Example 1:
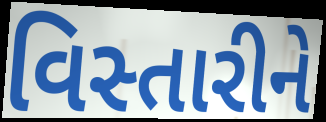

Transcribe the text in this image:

વિસ્તારીને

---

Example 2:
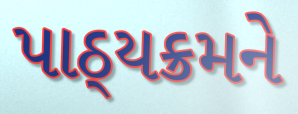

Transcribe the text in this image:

પાઠ્યક્રમને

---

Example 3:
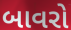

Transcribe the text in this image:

બાવરો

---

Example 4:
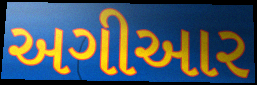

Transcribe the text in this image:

અગીઆર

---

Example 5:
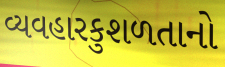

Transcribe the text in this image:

વ્યવહારકુશળતાનો